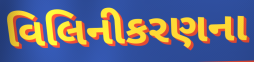
વિલિનીકરણના